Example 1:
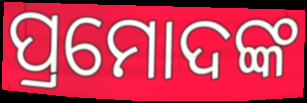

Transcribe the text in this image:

ପ୍ରମୋଦଙ୍କ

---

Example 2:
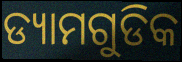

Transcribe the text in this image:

ଡ୍ୟାମଗୁଡିକ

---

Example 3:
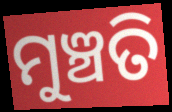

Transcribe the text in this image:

ମୁଞ୍ଚତି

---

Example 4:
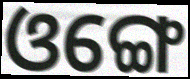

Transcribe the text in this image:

ଓଙ୍ଗେ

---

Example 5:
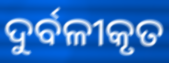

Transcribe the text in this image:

ଦୁର୍ବଳୀକୃତ